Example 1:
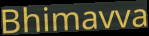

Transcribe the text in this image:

Bhimavva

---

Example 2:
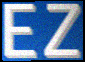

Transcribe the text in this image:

EZ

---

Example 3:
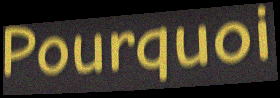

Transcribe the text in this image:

Pourquoi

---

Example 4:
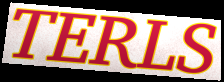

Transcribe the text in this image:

TERLS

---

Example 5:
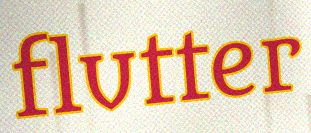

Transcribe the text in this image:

flutter